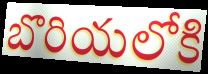
బొరియలోకి